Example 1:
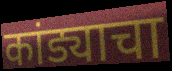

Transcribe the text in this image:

कांड्याचा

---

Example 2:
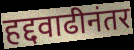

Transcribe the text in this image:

हद्दवाढीनंतर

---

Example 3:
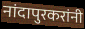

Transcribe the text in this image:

नांदापुरकरांनी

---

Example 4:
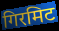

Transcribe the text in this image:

गिरमिट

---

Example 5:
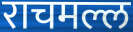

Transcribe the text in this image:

राचमल्ल